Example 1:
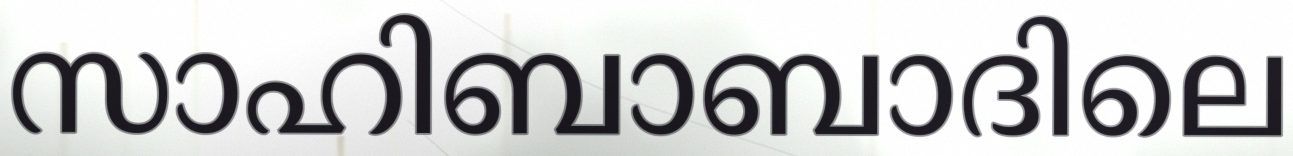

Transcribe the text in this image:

സാഹിബാബാദിലെ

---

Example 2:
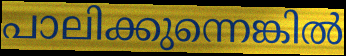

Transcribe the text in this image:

പാലിക്കുന്നെങ്കിൽ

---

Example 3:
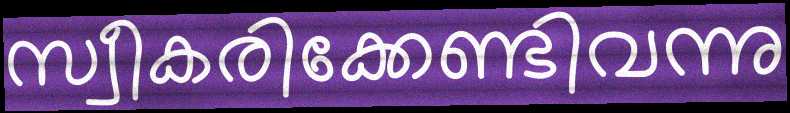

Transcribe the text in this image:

സ്വീകരിക്കേണ്ടിവന്നു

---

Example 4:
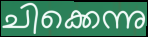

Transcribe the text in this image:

ചിക്കെന്നു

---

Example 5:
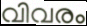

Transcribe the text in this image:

വിവരം